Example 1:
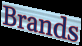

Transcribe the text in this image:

Brands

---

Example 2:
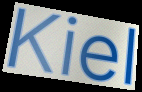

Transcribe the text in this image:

Kiel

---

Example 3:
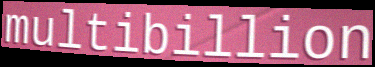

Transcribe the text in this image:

multibillion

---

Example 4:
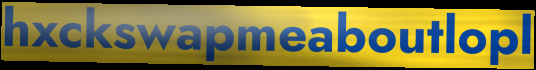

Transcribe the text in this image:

hxckswapmeaboutlopl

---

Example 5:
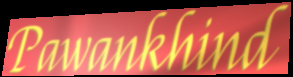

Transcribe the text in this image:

Pawankhind